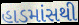
હાડમાંસથી